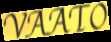
VAATO